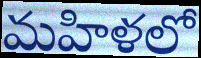
మహిళలో